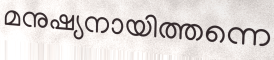
മനുഷ്യനായിത്തന്നെ